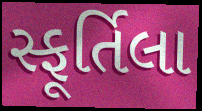
સ્ફૂર્તિલા